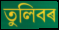
তুলিবৰ